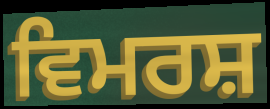
ਵਿਮਰਸ਼